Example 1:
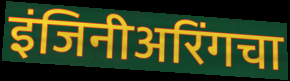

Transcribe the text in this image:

इंजिनीअरिंगचा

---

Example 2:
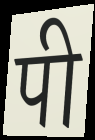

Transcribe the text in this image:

पी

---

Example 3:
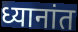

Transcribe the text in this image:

ध्यानांत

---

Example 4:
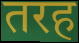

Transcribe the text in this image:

तरह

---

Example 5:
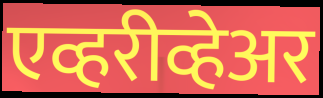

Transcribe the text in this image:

एव्हरीव्हेअर